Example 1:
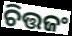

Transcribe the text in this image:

ଚିତ୍ତଜଂ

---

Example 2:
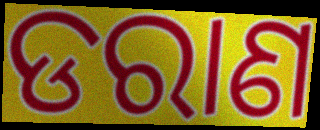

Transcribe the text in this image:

ଡରାଣ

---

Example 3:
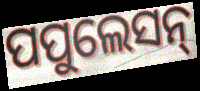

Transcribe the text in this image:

ପପୁଲେସନ୍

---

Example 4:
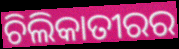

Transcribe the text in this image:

ଚିଲିକାତୀରର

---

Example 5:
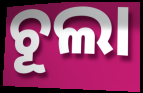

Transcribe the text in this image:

ଚୂଲା